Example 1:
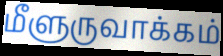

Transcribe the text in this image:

மீளுருவாக்கம்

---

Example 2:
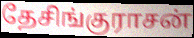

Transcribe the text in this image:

தேசிங்குராசன்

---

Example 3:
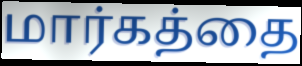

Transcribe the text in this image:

மார்கத்தை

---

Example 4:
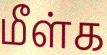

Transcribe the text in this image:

மீள்க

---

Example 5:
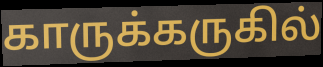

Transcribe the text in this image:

காருக்கருகில்